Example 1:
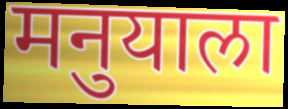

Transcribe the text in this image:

मनुयाला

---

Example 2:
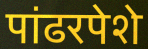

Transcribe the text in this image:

पांढरपेशे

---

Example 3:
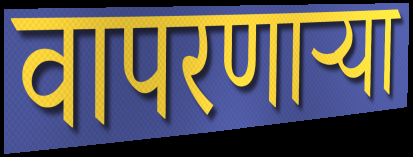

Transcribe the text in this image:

वापरणार्‍या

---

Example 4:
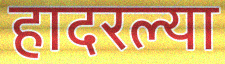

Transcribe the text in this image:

हादरल्या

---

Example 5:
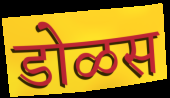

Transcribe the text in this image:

डोळस